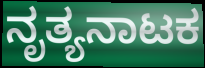
ನೃತ್ಯನಾಟಕ